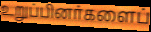
உறுப்பினர்களைப்